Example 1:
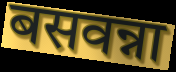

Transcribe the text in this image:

बसवन्ना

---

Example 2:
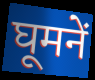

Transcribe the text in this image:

घूमनें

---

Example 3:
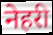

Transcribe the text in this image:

नेहरी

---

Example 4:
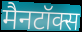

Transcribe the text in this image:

मैनटॉक्स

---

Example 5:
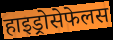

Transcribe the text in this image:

हाइड्रोसेफेलस